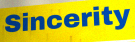
Sincerity